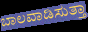
ಬಾಲವಾಡಿಸುತ್ತಾ